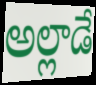
అల్లాడే